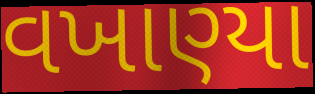
વખાણ્યા